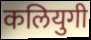
कलियुगी